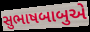
સુભાષબાબુએ